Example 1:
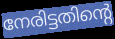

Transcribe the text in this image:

നേരിട്ടതിന്റെ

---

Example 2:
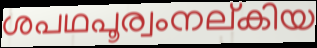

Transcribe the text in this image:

ശപഥപൂര്വംനല്കിയ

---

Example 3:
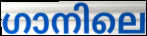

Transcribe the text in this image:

ഗാനിലെ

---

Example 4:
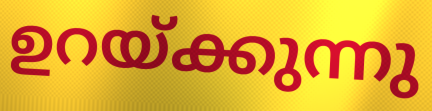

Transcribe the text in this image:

ഉറയ്ക്കുന്നു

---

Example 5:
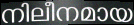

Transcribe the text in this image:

നിലീനമായ